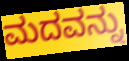
ಮದವನ್ನು